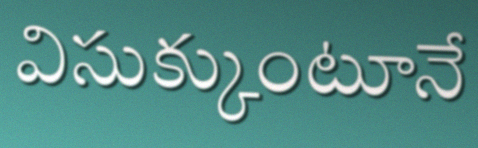
విసుక్కుంటూనే